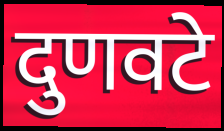
दुणवटे